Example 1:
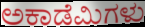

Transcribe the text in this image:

ಅಕಾಡೆಮಿಗಳು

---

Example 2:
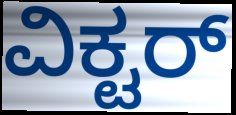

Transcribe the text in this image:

ವಿಕ್ಟರ್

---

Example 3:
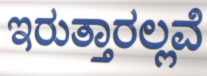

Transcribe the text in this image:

ಇರುತ್ತಾರಲ್ಲವೆ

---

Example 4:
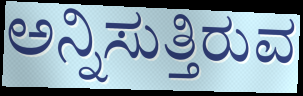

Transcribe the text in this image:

ಅನ್ನಿಸುತ್ತಿರುವ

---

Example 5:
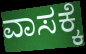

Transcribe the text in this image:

ವಾಸಕ್ಕೆ